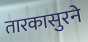
तारकासुरने